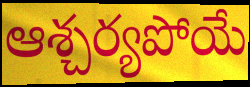
ఆశ్చర్యపోయే